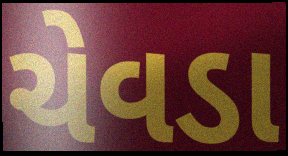
ચેવડા